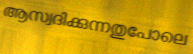
ആസ്വദിക്കുന്നതുപോലെ